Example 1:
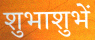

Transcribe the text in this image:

शुभाशुभें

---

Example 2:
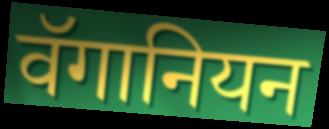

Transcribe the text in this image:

वॅगानियन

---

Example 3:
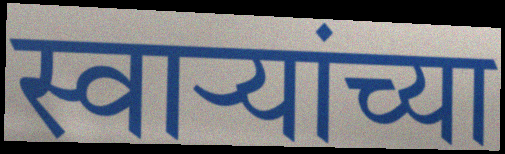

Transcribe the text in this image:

स्वाऱ्यांच्या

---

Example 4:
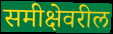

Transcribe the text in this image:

समीक्षेवरील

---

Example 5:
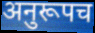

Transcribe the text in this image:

अनुरूपच